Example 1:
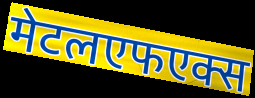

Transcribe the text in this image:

मेटलएफएक्स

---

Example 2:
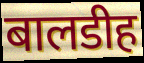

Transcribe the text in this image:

बालडीह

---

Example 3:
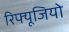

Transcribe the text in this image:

रिफ्यूजियो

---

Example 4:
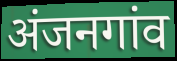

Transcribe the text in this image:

अंजनगांव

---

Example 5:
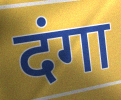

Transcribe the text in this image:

दंगा